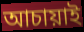
আচায়াই